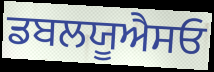
ਡਬਲਯੂਐਸਓ